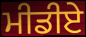
ਮੀਡੀਏ